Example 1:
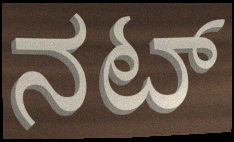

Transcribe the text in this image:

ನಟ್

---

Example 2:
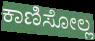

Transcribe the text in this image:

ಕಾಣಿಸೋಲ್ಲ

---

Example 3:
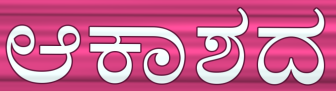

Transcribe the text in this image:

ಆಕಾಶದ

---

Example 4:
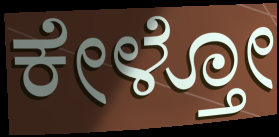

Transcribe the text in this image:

ಕೇಳ್ತೋ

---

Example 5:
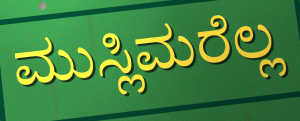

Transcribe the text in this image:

ಮುಸ್ಲಿಮರೆಲ್ಲ